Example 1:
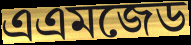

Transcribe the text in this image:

এএমজেড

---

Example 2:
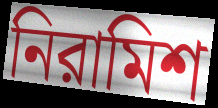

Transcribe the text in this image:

নিরামিশ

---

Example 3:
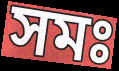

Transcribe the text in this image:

সমঃ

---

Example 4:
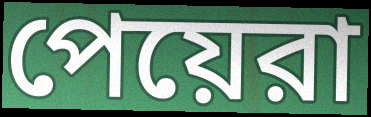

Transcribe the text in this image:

পেয়েরা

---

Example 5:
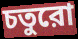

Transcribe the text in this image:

চতুরো